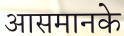
आसमानके